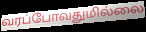
வரப்போவதுமில்லை